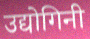
उद्योगिनी